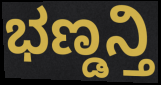
ಭಣ್ಡನ್ತಿ